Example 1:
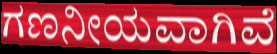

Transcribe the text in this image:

ಗಣನೀಯವಾಗಿವೆ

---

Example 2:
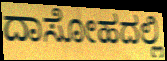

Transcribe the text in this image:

ದಾಸೋಹದಲ್ಲಿ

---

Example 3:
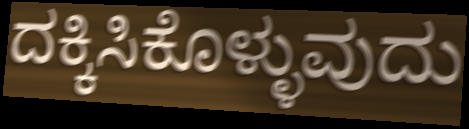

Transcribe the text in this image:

ದಕ್ಕಿಸಿಕೊಳ್ಳುವುದು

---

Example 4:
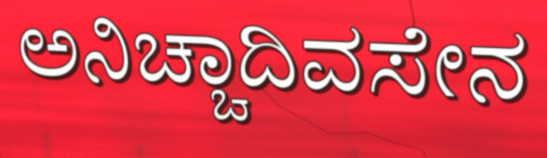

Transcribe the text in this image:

ಅನಿಚ್ಚಾದಿವಸೇನ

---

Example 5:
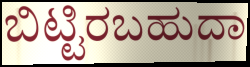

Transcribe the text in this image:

ಬಿಟ್ಟಿರಬಹುದಾ